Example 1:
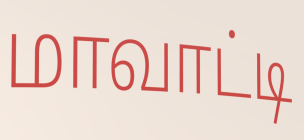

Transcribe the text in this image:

மாவாட்டி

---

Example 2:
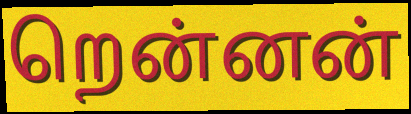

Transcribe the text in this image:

றென்னன்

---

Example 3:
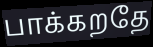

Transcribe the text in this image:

பாக்கறதே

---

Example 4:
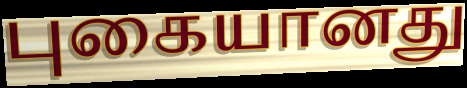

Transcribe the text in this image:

புகையானது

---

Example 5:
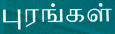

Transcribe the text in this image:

புரங்கள்